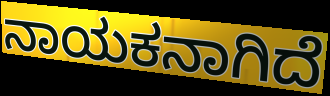
ನಾಯಕನಾಗಿದೆ